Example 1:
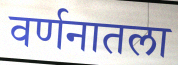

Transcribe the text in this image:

वर्णनातला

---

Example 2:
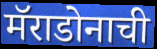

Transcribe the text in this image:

मॅराडोनाची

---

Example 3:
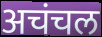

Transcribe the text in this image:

अचंचल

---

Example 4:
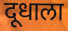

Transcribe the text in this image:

दूधाला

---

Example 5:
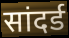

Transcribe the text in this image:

सांदर्ड